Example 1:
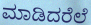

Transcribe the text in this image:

ಮಾಡಿದರೆಲೆ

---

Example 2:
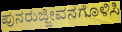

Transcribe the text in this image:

ಪುನರುಜ್ಜೀವನಗೊಳಿಸಿ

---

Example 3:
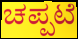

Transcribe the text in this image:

ಚಪ್ಪಟೆ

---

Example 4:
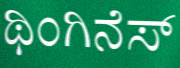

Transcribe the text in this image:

ಥಿಂಗಿನೆಸ್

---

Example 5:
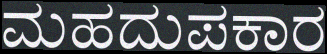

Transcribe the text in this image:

ಮಹದುಪಕಾರ